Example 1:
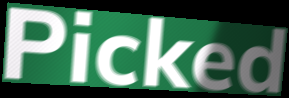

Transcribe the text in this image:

Picked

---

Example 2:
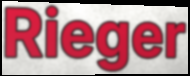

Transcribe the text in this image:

Rieger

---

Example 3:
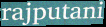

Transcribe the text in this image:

rajputani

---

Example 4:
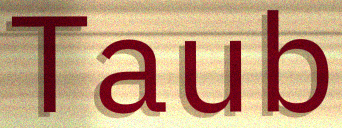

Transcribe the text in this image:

Taub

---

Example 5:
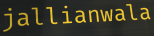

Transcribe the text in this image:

jallianwala